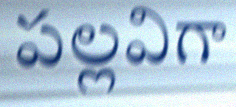
పల్లవిగా